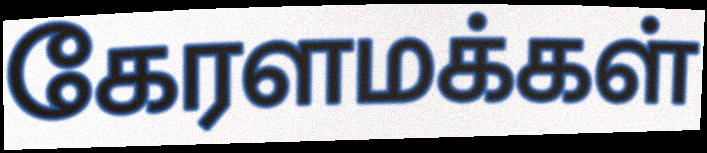
கேரளமக்கள்